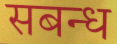
सबन्ध